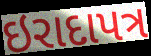
ઇરાદાપત્ર